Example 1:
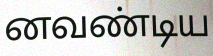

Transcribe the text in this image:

னவண்டிய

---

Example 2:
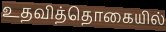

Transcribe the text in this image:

உதவித்தொகையில்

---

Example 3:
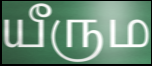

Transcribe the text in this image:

யீரும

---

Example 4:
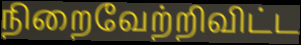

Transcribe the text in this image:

நிறைவேற்றிவிட்ட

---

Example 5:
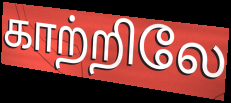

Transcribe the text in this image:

காற்றிலே